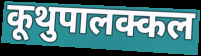
कूथुपालक्कल